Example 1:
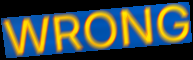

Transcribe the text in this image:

WRONG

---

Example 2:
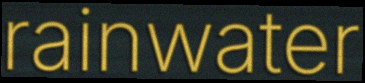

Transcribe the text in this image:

rainwater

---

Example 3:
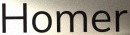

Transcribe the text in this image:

Homer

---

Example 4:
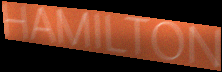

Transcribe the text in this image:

HAMILTON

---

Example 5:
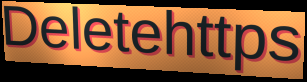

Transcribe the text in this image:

Deletehttps